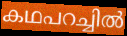
കഥപറച്ചിൽ